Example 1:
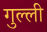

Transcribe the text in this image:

गुल्ली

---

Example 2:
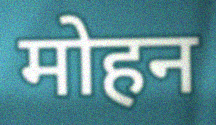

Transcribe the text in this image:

मोहन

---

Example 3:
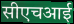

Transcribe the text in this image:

सीएचआई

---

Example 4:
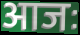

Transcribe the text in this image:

आजः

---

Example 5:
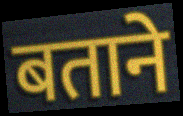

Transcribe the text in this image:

बताने